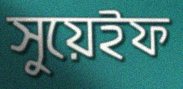
সুয়েইফ